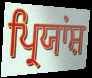
ਪ੍ਰਿਯਾਂਸ਼